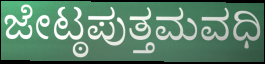
ಜೇಟ್ಠಪುತ್ತಮವಧಿ